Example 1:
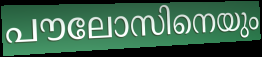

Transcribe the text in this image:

പൗലോസിനെയും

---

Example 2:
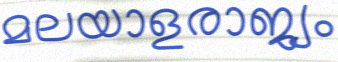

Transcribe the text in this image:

മലയാളരാജ്യം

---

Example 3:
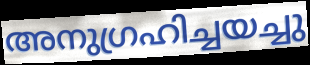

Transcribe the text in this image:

അനുഗ്രഹിച്ചയച്ചു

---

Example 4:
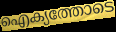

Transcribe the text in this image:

ഐക്യത്തോടെ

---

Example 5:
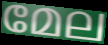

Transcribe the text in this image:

മേല